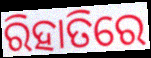
ରିହାତିରେ